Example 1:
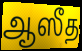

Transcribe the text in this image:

ஆஸீத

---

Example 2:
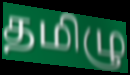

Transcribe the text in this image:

தமிழு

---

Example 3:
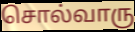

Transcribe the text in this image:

சொல்வாரு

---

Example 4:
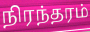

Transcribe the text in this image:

நிரந்தரம்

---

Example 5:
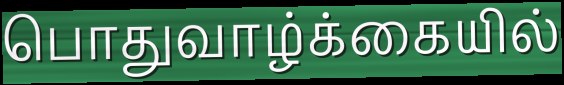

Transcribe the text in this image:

பொதுவாழ்க்கையில்